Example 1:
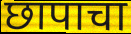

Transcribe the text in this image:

छापाचा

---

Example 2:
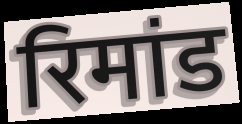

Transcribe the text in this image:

रिमांड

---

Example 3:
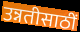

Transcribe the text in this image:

उन्नतीसाठीं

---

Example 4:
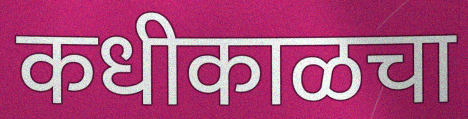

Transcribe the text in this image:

कधीकाळचा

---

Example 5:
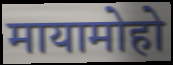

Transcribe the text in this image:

मायामोहो